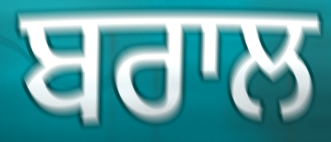
ਬਰਾਲ